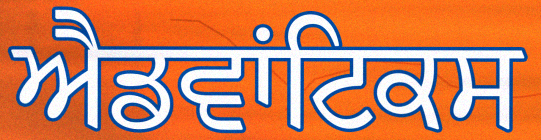
ਐਡਵਾਂਟਿਕਸ